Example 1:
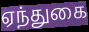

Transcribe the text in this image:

ஏந்துகை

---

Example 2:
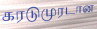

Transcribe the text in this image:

கரடுமுரடான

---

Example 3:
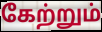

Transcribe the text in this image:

கேற்றும்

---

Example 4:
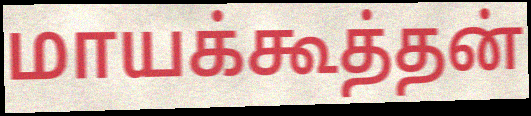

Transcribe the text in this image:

மாயக்கூத்தன்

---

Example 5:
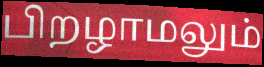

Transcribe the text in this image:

பிறழாமலும்